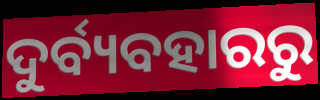
ଦୁର୍ବ୍ୟବହାରରୁ